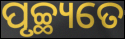
ପୃଚ୍ଛ୍ୟତେ